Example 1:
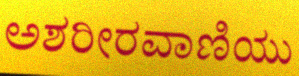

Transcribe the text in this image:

ಅಶರೀರವಾಣಿಯು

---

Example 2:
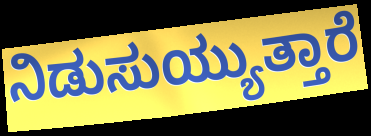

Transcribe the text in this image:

ನಿಡುಸುಯ್ಯುತ್ತಾರೆ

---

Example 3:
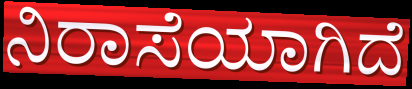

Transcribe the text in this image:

ನಿರಾಸೆಯಾಗಿದೆ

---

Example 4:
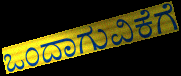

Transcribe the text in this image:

ಒಂದಾಗುವಿಕೆಗೆ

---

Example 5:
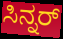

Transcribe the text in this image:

ಸಿನ್ನರ್